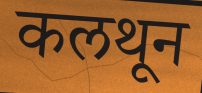
कलथून